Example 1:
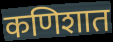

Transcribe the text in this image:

कणिशात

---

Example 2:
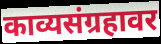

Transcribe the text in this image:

काव्यसंग्रहावर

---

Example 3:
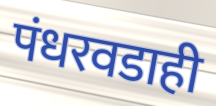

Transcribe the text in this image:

पंधरवडाही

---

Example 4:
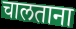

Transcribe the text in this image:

चालताना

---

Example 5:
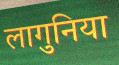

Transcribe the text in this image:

लागुनिया